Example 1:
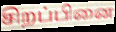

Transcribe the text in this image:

சிறப்பினை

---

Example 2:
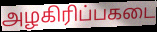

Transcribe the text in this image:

அழகிரிப்பகடை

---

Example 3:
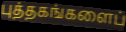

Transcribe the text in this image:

புத்தகங்களைப்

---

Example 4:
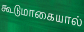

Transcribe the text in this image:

கூடுமாகையால்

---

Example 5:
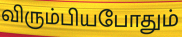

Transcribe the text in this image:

விரும்பியபோதும்